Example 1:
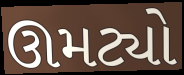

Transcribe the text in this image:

ઊમટ્યો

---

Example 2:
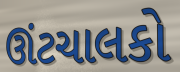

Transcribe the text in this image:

ઊંટચાલકો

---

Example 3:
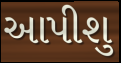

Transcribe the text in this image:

આપીશુ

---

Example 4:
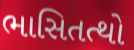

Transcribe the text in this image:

ભાસિતત્થો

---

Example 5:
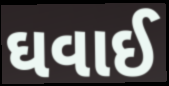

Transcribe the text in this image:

ઘવાઈ